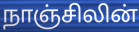
நாஞ்சிலின்